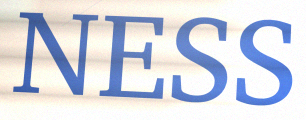
NESS